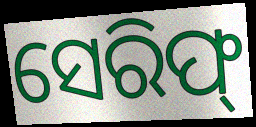
ସେରିଫ୍